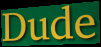
Dude